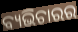
ବ୍ୟଭିଚାରର